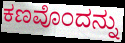
ಕಣವೊಂದನ್ನು